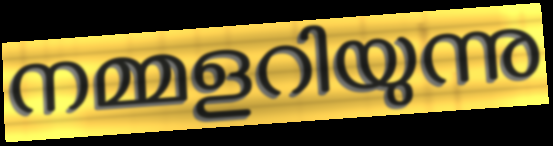
നമ്മളറിയുന്നു